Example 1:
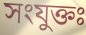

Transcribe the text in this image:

সংযুক্তঃ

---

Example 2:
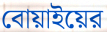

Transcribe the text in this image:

বোয়াইয়ের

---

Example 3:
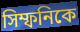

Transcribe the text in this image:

সিম্ফনিকে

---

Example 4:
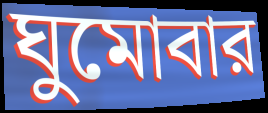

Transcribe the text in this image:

ঘুমোবার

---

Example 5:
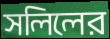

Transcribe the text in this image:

সলিলের